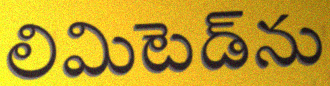
లిమిటెడ్‌ను